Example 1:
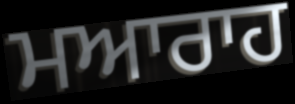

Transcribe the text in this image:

ਮਆਰਾਹ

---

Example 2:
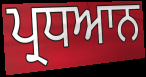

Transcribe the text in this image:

ਪ੍ਰਧਆਨ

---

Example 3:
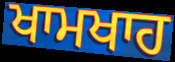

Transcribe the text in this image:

ਖਾਮਖਾਹ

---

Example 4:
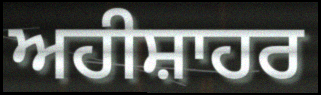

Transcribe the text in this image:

ਅਹੀਸ਼ਾਹਰ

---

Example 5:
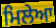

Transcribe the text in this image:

ਮਿਲੇਆ